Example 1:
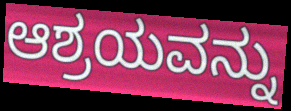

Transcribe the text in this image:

ಆಶ್ರಯವನ್ನು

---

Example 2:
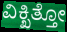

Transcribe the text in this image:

ವಿಕ್ಖಿತ್ತೋ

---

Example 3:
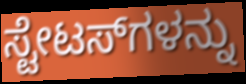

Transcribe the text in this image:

ಸ್ಟೇಟಸ್‌ಗಳನ್ನು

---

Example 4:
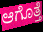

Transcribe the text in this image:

ಆಗೊತ್ತೆ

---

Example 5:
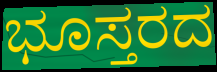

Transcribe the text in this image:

ಭೂಸ್ತರದ